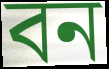
বন